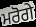
ਮਰੋਗੇ